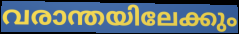
വരാന്തയിലേക്കും